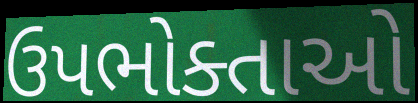
ઉપભોક્તાઓ